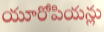
యూరోపియన్లు